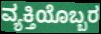
ವ್ಯಕ್ತಿಯೊಬ್ಬರ